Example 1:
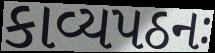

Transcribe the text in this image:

કાવ્યપઠનઃ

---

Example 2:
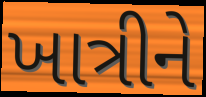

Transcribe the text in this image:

ખાત્રીને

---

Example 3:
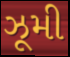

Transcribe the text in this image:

ઝૂમી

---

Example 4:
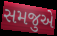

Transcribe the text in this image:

સમજુએ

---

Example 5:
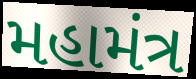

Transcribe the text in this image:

મહામંત્ર